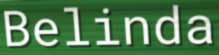
Belinda